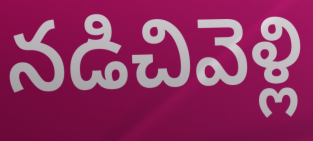
నడిచివెళ్లి